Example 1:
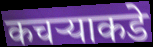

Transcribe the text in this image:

कचऱ्याकडे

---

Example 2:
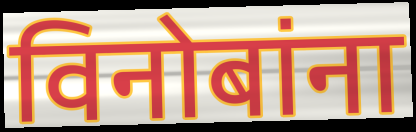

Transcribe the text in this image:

विनोबांना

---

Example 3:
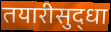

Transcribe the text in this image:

तयारीसुद्धा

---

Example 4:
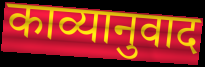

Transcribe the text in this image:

काव्यानुवाद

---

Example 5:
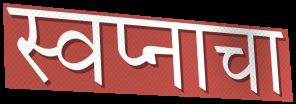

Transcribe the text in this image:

स्वप्नाचा